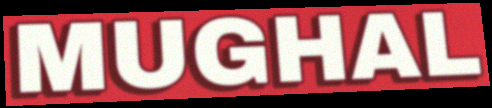
MUGHAL